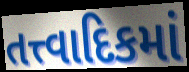
તત્ત્વાદિકમાં